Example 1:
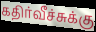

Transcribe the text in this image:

கதிர்வீச்சுக்கு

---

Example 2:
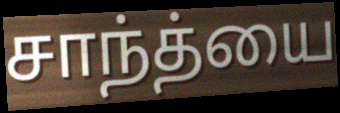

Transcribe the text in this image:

சாந்த்யை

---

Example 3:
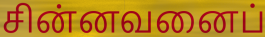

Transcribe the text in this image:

சின்னவனைப்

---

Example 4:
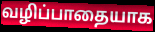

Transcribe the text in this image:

வழிப்பாதையாக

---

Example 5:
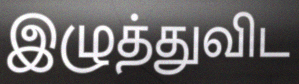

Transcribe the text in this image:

இழுத்துவிட